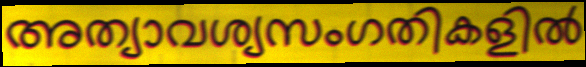
അത്യാവശ്യസംഗതികളിൽ